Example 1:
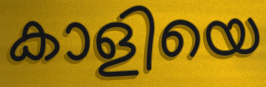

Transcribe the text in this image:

കാളിയെ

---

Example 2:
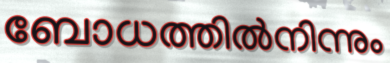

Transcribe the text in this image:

ബോധത്തിൽനിന്നും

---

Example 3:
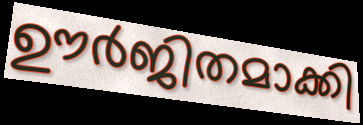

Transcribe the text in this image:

ഊർജിതമാക്കി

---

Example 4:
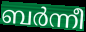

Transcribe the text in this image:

ബർന്നീ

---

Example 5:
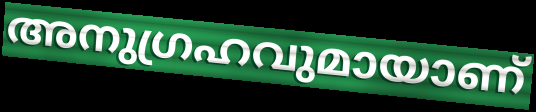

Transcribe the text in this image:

അനുഗ്രഹവുമായാണ്